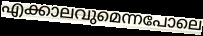
എക്കാലവുമെന്നപോലെ